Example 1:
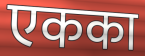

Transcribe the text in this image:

एकका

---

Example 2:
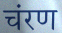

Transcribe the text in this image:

चंरण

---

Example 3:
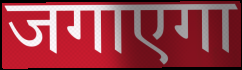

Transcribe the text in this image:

जगाएगा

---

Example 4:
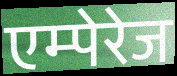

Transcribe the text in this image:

एम्पेरेज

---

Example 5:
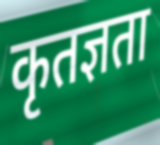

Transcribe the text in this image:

कृतज्ञता